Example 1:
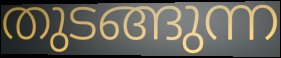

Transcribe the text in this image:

തുടങ്ങുന്ന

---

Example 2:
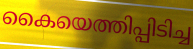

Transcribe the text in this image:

കൈയെത്തിപ്പിടിച്ച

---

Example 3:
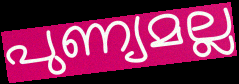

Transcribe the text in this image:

പുണ്യമല്ല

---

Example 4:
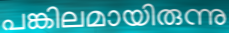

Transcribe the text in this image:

പങ്കിലമായിരുന്നു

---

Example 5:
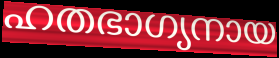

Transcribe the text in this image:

ഹതഭാഗ്യനായ